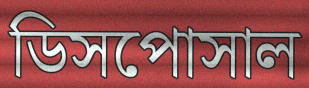
ডিসপোসাল